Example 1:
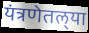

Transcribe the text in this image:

यंत्रणेतल्या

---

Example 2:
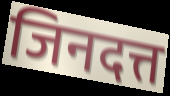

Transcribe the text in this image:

जिनदत्त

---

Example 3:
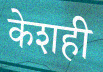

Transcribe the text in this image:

केशही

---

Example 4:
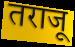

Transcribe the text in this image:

तराजू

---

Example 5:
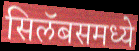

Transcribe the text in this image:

सिलॅबसमध्ये